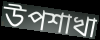
উপশাখা